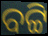
ବଟ୍ଟି